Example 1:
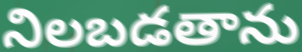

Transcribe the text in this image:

నిలబడతాను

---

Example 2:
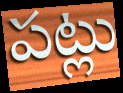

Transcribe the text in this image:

పట్లు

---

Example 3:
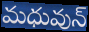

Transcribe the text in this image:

మధువున్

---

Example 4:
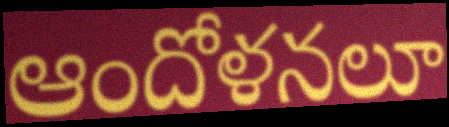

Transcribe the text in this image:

ఆందోళనలూ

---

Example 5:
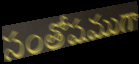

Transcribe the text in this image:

సంతోషముగా